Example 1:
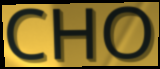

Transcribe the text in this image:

CHO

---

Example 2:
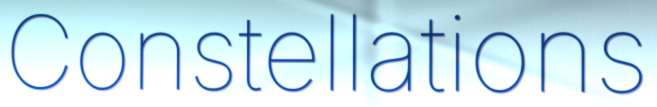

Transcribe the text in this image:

Constellations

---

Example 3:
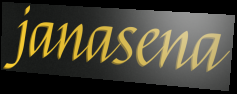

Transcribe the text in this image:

janasena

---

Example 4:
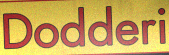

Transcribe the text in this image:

Dodderi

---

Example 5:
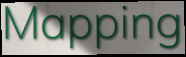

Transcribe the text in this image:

Mapping